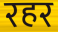
रहर